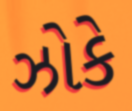
ઝોકે